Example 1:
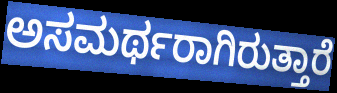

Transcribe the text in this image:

ಅಸಮರ್ಥರಾಗಿರುತ್ತಾರೆ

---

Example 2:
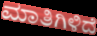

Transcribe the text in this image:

ಮಾತಿಗಿಳಿದೆ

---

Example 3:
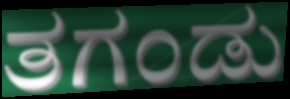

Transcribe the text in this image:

ತಗಂಡು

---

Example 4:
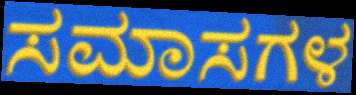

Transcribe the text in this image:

ಸಮಾಸಗಳ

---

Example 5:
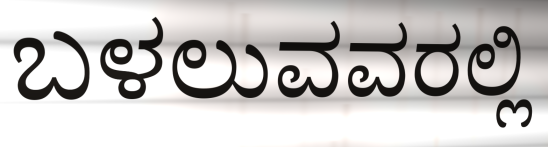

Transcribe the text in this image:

ಬಳಲುವವರಲ್ಲಿ